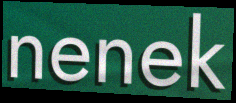
nenek